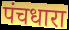
पंचधारा